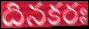
దినకరః